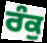
ਰੰਕੁ